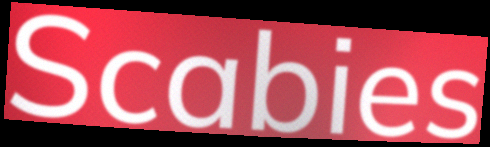
Scabies